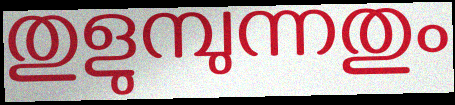
തുളുമ്പുന്നതും